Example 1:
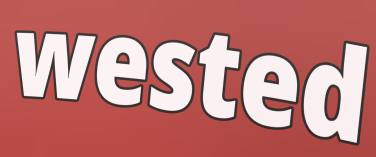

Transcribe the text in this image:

wested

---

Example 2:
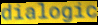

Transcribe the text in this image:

dialogic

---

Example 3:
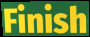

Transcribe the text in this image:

Finish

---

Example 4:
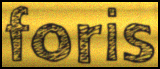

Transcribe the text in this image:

foris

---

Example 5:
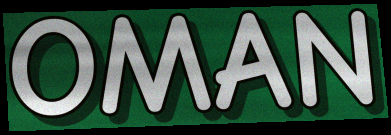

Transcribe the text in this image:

OMAN